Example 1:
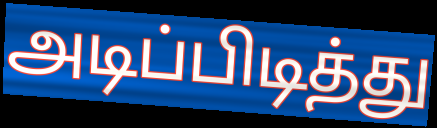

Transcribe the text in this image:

அடிப்பிடித்து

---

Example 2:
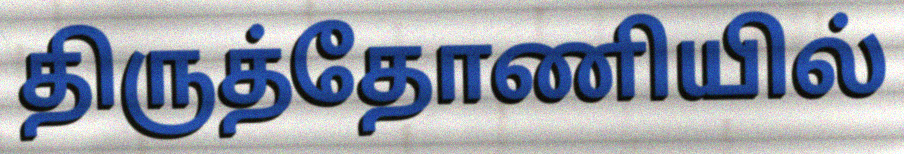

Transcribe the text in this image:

திருத்தோணியில்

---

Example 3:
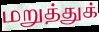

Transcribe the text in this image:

மறுத்துக்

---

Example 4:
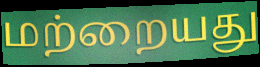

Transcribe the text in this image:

மற்றையது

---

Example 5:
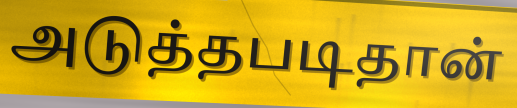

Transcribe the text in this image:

அடுத்தபடிதான்